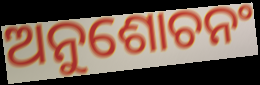
ଅନୁଶୋଚନଂ